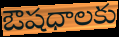
ఔషధాలకు